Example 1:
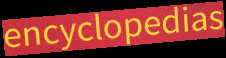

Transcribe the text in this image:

encyclopedias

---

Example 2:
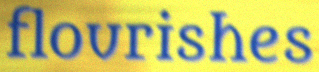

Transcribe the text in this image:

flourishes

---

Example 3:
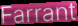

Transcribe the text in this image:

Farrant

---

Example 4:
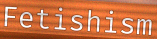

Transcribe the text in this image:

Fetishism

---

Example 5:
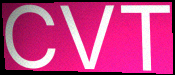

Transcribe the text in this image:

CVT